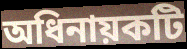
অধিনায়কটি